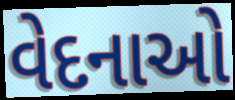
વેદનાઓ